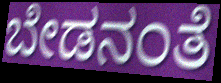
ಬೇಡನಂತೆ